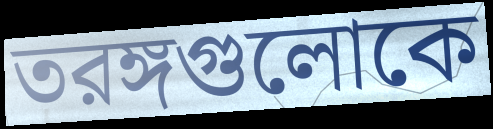
তরঙ্গগুলোকে